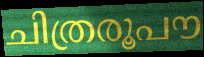
ചിത്രരൂപൗ